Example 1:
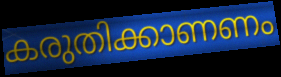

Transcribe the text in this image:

കരുതിക്കാണണം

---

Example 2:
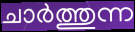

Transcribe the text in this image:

ചാർത്തുന്ന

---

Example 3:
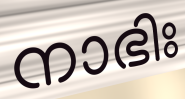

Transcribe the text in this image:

നാഭിഃ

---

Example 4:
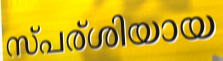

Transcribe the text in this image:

സ്പര്ശിയായ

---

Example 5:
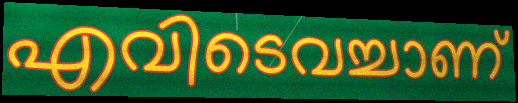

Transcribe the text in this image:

എവിടെവച്ചാണ്